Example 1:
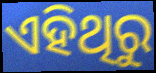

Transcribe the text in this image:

ଏହିଥିରୁ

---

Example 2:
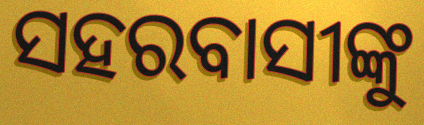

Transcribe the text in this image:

ସହରବାସୀଙ୍କୁ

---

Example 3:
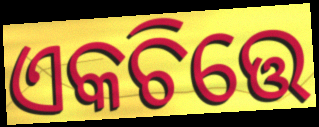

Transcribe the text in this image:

ଏକଚିତ୍ତେ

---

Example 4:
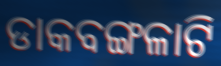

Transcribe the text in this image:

ଡାକବଙ୍ଗଳାଟି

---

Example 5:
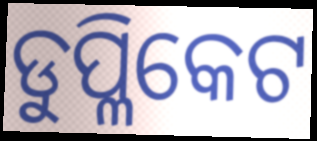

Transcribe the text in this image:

ଡୁପ୍ଳିକେଟ